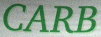
CARB